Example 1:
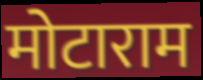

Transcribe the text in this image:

मोटाराम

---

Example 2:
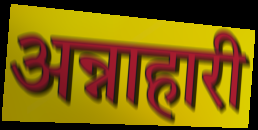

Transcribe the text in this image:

अन्नाहारी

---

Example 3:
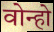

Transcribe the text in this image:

वोन्हो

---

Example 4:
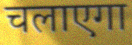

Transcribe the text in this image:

चलाएगा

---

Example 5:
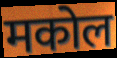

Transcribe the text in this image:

मकोल